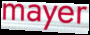
mayer